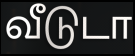
வீடுடா